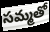
సమ్మతో